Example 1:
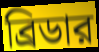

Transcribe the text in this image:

ব্রিডার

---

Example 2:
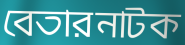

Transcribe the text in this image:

বেতারনাটক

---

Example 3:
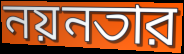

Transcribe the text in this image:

নয়নতার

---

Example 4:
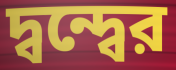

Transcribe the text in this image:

দ্বন্দ্বের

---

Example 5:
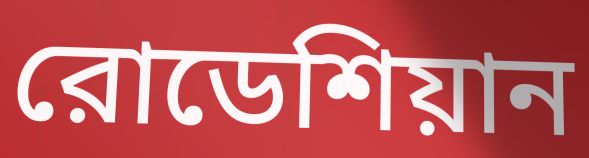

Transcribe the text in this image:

রোডেশিয়ান